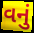
વનું